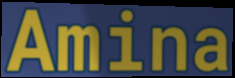
Amina